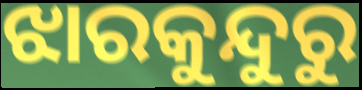
ଝାରକୁନ୍ଦୁରୁ